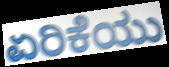
ಏರಿಕೆಯು